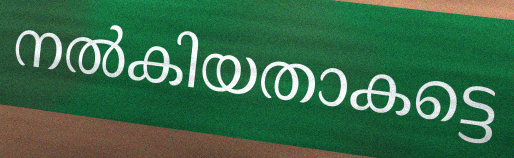
നൽകിയതാകട്ടെ